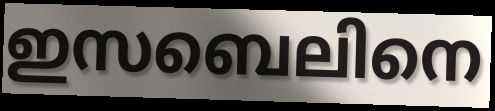
ഇസബെലിനെ